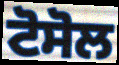
ਟੋਸੋਲ